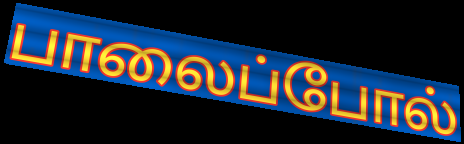
பாலைப்போல்